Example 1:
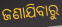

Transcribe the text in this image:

ଜଣାଯିବାରୁ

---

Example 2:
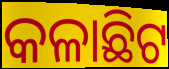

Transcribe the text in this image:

କଳାଛିଟ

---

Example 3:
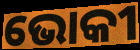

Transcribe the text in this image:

ଭୋକୀ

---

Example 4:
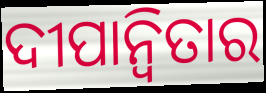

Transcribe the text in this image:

ଦୀପାନ୍ୱିତାର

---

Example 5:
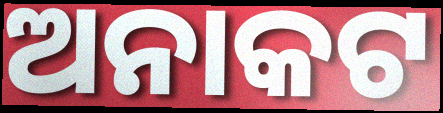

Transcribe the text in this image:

ଅନାକଟ